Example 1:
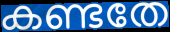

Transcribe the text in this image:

കണ്ടതേ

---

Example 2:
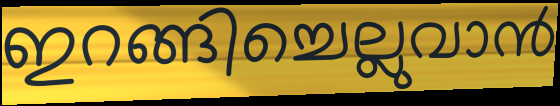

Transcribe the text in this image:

ഇറങ്ങിച്ചെല്ലുവാൻ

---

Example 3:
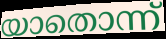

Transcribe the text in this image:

യാതൊന്ന്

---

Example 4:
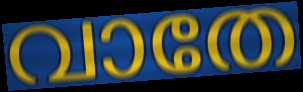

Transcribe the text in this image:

വാതേ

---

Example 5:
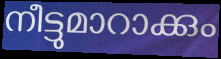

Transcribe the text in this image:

നീട്ടുമാറാക്കും